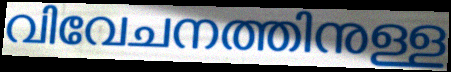
വിവേചനത്തിനുള്ള